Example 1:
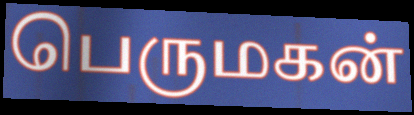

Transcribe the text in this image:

பெருமகன்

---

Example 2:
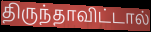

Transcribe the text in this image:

திருந்தாவிட்டால்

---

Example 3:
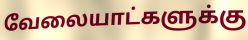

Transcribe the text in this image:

வேலையாட்களுக்கு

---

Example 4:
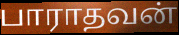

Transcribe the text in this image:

பாராதவன்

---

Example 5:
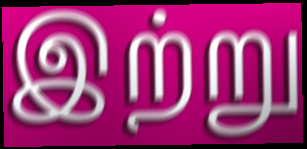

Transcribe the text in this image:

இற்று